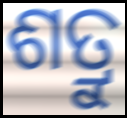
ଶତ୍ରୁ